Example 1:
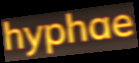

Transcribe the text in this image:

hyphae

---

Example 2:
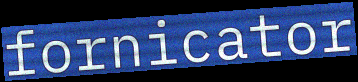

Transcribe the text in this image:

fornicator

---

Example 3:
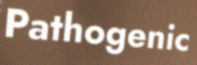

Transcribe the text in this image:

Pathogenic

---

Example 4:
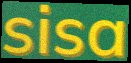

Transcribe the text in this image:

sisa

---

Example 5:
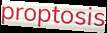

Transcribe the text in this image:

proptosis